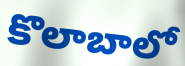
కొలాబాలో